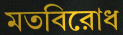
মতবিরোধ